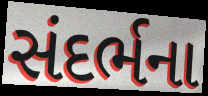
સંદર્ભના